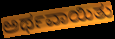
ಅರ್ಥವಾಯಿತು